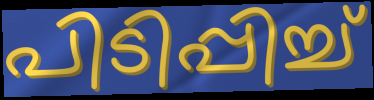
പിടിപ്പിച്ച്